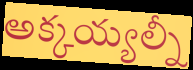
అక్కయ్యల్నీ